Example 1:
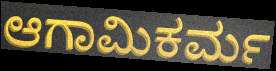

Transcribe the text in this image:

ಆಗಾಮಿಕರ್ಮ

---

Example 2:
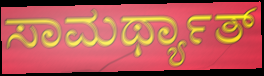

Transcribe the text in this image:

ಸಾಮರ್ಥ್ಯಾತ್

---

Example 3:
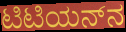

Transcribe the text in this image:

ಟಿಟಿಯನ್‌ನ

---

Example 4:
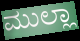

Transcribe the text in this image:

ಮುಲ್ಲಾ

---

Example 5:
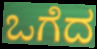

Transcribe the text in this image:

ಒಗೆದ